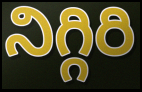
నిగ్గిరి